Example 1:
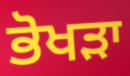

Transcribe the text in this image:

ਭੋਖੜਾ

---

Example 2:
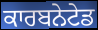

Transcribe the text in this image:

ਕਾਰਬਨੇਟੇਡ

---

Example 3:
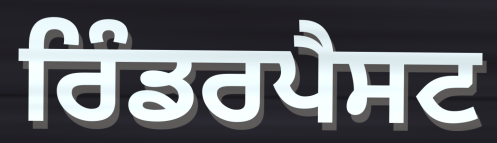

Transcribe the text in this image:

ਰਿੰਡਰਪੈਸਟ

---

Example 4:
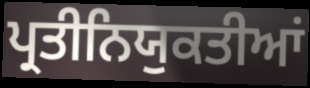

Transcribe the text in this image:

ਪ੍ਰਤੀਨਿਯੁਕਤੀਆਂ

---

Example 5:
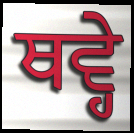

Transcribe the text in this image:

ਥਵ੍ਹੇ